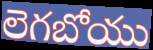
లెగబోయు